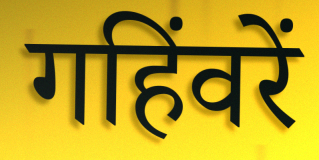
गहिंवरें